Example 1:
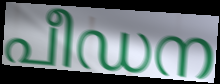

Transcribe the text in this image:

പീഡന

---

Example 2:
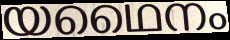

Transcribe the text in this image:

യഥൈനം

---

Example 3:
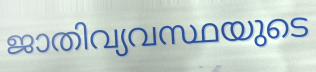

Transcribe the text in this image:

ജാതിവ്യവസ്ഥയുടെ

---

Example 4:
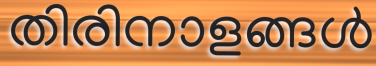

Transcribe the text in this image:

തിരിനാളങ്ങൾ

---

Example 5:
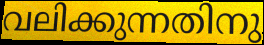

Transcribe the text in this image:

വലിക്കുന്നതിനു